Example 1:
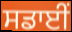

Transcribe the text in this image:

ਸਡਾਈਂ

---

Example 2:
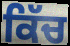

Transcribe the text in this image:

ਕਿੱਚ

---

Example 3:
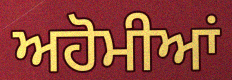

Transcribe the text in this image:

ਅਹੋਮੀਆਂ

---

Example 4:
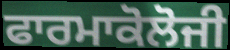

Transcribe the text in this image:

ਫਾਰਮਾਕੋਲੋਜੀ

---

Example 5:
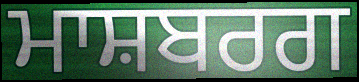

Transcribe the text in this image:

ਮਾਸ਼ਬਰਗ